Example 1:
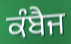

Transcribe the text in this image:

ਕੰਬੈਜ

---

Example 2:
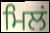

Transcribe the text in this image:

ਮਿਲਂ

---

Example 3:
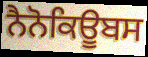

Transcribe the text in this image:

ਨੈਨੋਕਿਊਬਸ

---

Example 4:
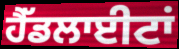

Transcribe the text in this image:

ਹੈੱਡਲਾਈਟਾਂ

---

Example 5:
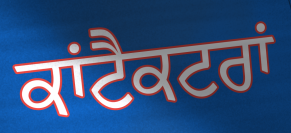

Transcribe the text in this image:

ਕਾਂਟੈਕਟਰਾਂ